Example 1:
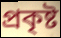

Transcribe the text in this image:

প্ৰকৃষ্ট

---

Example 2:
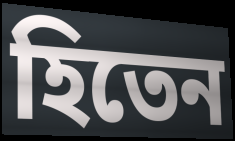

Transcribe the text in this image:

হিতেন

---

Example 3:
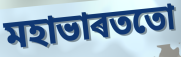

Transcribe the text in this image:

মহাভাৰততো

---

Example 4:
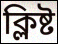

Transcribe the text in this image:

ক্লিষ্ট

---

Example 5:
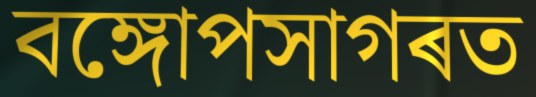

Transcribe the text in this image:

বঙ্গোপসাগৰত